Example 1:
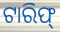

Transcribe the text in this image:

ଟାରିଫ୍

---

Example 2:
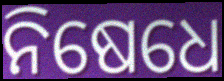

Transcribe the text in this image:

ନିଷେଧେ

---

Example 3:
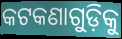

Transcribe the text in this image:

କଟକଣାଗୁଡ଼ିକୁ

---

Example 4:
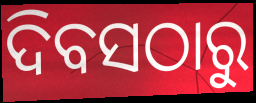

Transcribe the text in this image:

ଦିବସଠାରୁ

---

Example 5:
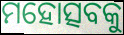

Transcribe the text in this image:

ମହୋତ୍ସବକୁ